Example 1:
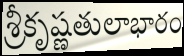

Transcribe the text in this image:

శ్రీకృష్ణతులాభారం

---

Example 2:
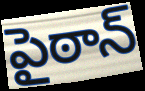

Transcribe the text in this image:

పైఠాన్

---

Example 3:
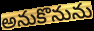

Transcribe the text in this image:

అనుకొనును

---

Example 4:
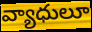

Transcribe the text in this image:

వ్యాధులూ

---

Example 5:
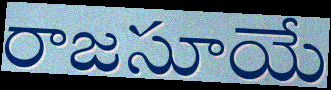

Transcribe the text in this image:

రాజసూయే